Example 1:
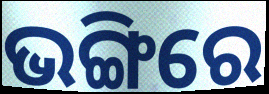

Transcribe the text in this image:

ଭଙ୍ଗିରେ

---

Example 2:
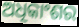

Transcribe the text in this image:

ଅଧିକାଂଶର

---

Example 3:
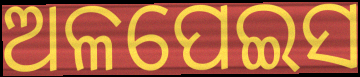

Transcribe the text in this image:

ଅଳପେଇସ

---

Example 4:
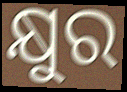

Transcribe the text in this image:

କ୍ଷୁର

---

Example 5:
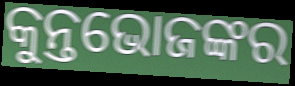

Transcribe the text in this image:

କୁନ୍ତଭୋଜଙ୍କର